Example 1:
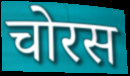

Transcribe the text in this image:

चोरस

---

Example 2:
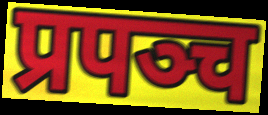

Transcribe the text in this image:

प्रपञ्च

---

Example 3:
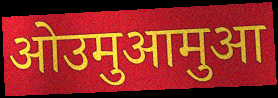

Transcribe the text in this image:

ओउमुआमुआ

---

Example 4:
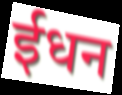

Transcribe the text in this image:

ईधन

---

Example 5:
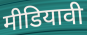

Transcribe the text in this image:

मीडियावी